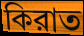
কিরাত